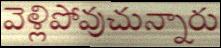
వెళ్లిపోవుచున్నారు